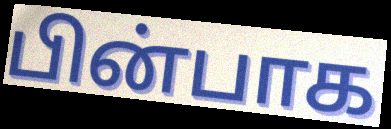
பின்பாக